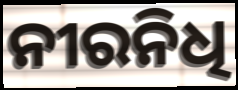
ନୀରନିଧି